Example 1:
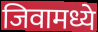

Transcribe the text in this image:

जिवामध्ये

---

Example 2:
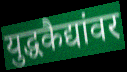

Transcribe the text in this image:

युद्धकैद्यांवर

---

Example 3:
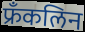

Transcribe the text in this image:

फ्रॅंकलिन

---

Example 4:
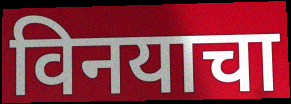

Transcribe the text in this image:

विनयाचा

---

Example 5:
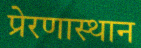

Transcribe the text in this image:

प्रेरणास्थान